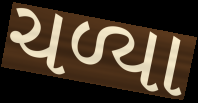
ચળ્યા